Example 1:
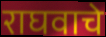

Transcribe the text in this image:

राघवाचे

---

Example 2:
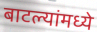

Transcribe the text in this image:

बाटल्यांमध्ये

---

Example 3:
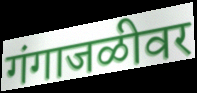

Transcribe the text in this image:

गंगाजळीवर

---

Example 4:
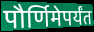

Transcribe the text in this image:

पौर्णिमेपर्यंत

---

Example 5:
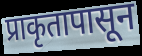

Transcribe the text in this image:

प्राकृतापासून